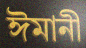
ঈমানী